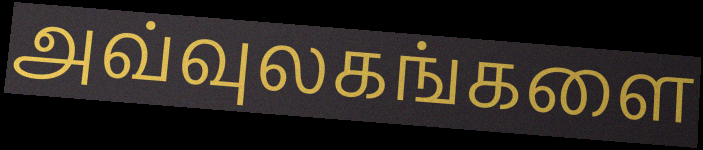
அவ்வுலகங்களை